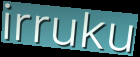
irruku